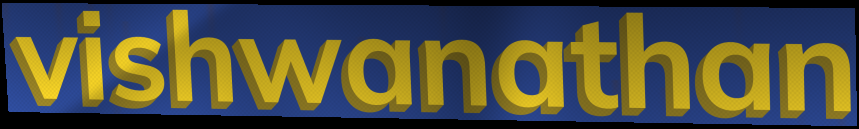
vishwanathan